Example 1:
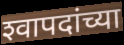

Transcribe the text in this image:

श्‍वापदांच्या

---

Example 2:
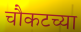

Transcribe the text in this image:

चौकटच्या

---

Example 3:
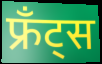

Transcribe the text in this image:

फ्रँट्स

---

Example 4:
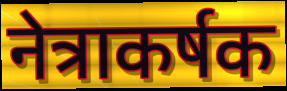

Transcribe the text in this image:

नेत्राकर्षक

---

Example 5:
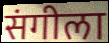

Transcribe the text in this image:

संगीला